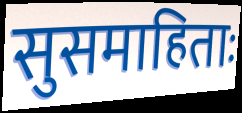
सुसमाहिताः